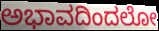
ಅಭಾವದಿಂದಲೋ